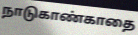
நாடுகாண்காதை